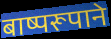
बाष्परूपाने